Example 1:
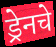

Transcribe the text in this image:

ड्रेनचे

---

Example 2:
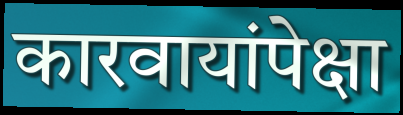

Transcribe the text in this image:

कारवायांपेक्षा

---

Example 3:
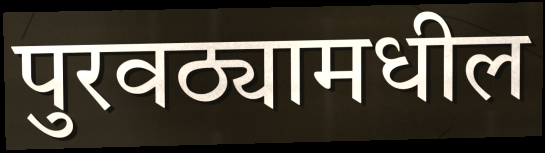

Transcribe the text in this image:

पुरवठ्यामधील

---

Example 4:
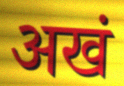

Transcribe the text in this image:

अखं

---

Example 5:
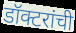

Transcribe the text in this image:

डॉक्टरांची